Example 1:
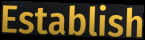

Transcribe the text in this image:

Establish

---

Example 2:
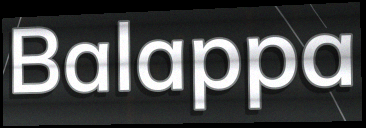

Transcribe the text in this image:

Balappa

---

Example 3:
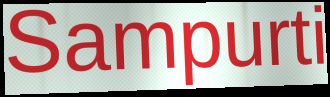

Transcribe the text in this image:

Sampurti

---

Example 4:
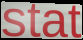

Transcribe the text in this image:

stat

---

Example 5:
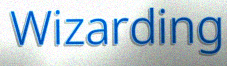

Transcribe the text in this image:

Wizarding